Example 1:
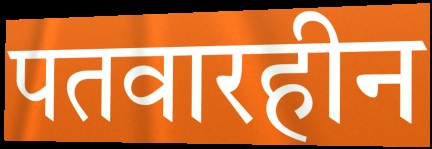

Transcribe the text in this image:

पतवारहीन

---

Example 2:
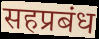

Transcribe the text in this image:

सहप्रबंध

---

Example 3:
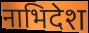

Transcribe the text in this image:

नाभिदेश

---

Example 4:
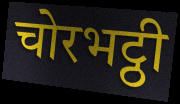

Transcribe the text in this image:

चोरभट्ठी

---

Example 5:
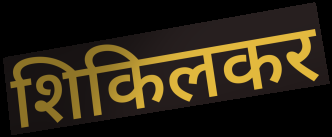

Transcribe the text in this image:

शिकिलकर